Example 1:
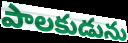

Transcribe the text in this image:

పాలకుడును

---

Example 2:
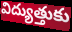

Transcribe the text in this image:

విద్యుత్తుకు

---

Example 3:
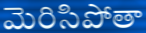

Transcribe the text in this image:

మెరిసిపోతా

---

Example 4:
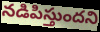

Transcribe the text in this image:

నడిపిస్తుందని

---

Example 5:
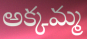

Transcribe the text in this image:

అక్కమ్మ